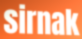
sirnak